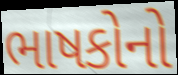
ભાષકોનો